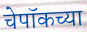
चेपॉकच्या